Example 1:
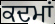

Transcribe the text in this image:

ਕਦਮਾਂ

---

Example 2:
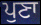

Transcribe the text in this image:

ਪੁਣਾ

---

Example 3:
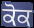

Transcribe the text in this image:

ਕੋਕ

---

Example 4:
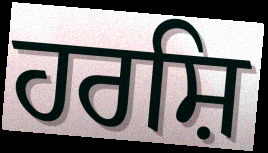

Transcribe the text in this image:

ਹਰਸ਼ਿ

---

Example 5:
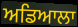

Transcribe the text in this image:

ਅਡਿਆਲਾ